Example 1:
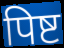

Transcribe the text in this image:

पिष्ट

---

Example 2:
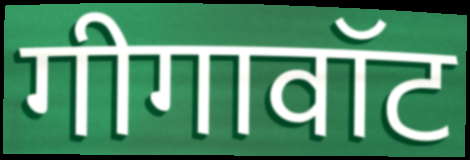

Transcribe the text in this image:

गीगावॉट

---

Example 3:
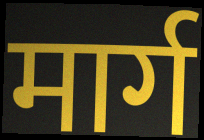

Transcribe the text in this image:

मार्ग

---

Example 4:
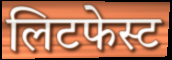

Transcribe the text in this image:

लिटफेस्ट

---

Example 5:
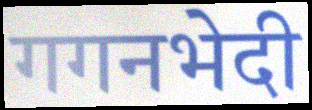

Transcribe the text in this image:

गगनभेदी